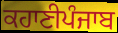
ਕਹਾਣੀਪੰਜਾਬ